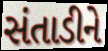
સંતાડીને